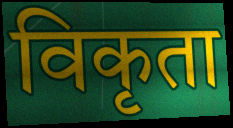
विकृता